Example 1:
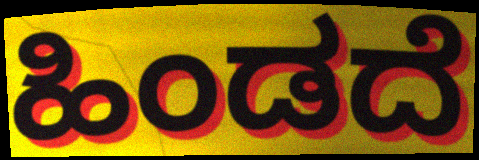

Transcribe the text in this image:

ಹಿಂಡದೆ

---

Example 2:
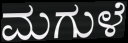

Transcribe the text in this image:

ಮಗುಳೆ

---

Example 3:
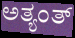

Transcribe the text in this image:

ಅತ್ಯಂತ್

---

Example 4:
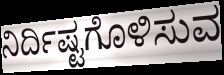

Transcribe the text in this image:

ನಿರ್ದಿಷ್ಟಗೊಳಿಸುವ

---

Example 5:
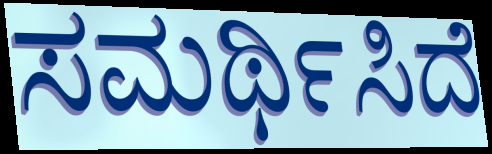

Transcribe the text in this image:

ಸಮರ್ಥಿಸಿದೆ